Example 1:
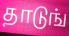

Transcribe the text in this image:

தாடுங்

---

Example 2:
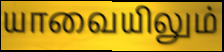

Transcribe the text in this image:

யாவையிலும்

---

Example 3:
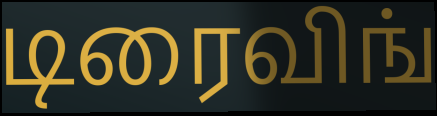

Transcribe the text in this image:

டிரைவிங்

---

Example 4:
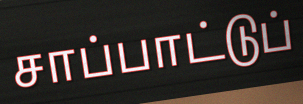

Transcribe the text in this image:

சாப்பாட்டுப்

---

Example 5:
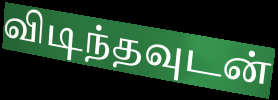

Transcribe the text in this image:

விடிந்தவுடன்